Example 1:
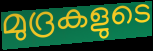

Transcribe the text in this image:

മുദ്രകളുടെ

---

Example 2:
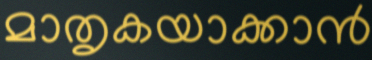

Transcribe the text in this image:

മാതൃകയാക്കാൻ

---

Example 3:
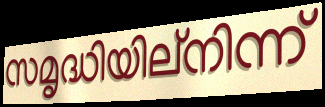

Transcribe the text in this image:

സമൃദ്ധിയില്നിന്ന്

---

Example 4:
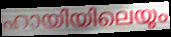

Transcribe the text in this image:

ഹായിയിലെയും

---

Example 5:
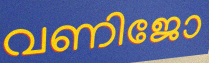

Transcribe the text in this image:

വണിജോ